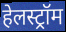
हेलस्ट्रॉम